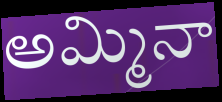
అమ్మినా